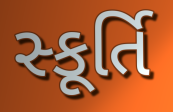
સ્કૂર્તિ